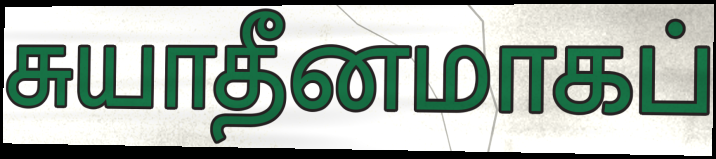
சுயாதீனமாகப்